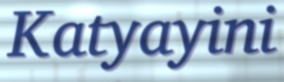
Katyayini